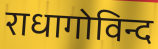
राधागोविन्द